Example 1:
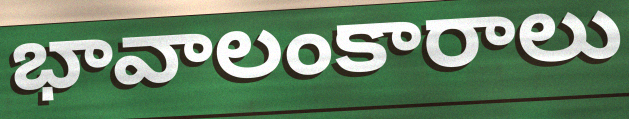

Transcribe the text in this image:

భావాలంకారాలు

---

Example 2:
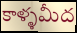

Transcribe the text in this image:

కాళ్ళమీద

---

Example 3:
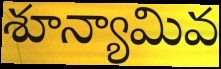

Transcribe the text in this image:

శూన్యామివ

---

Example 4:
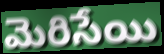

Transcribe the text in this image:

మెరిసేయి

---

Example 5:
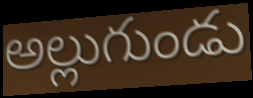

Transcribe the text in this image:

అల్లుగుండు